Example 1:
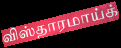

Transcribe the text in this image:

விஸ்தாரமாய்க்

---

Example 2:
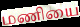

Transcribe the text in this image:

மணியை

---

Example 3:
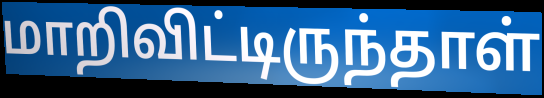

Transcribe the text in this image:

மாறிவிட்டிருந்தாள்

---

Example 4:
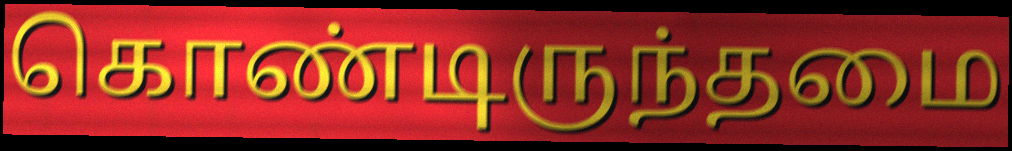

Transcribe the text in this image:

கொண்டிருந்தமை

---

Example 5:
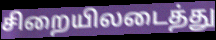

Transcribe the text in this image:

சிறையிலடைத்து